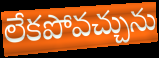
లేకపోవచ్చును